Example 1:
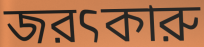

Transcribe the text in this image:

জরৎকারু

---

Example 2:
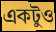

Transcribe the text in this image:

একটুও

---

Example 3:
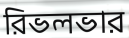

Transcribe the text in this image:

রিভলভার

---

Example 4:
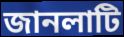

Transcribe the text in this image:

জানলাটি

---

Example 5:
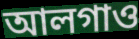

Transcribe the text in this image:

আলগাও